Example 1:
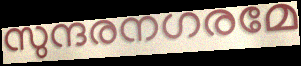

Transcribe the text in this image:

സുന്ദരനഗരമേ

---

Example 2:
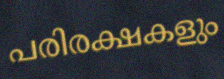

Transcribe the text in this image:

പരിരക്ഷകളും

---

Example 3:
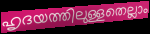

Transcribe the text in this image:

ഹൃദയത്തിലുള്ളതെല്ലാം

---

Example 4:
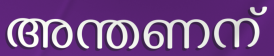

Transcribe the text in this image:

അന്തണന്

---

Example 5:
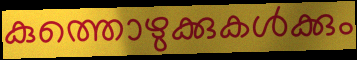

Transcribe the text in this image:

കുത്തൊഴുക്കുകൾക്കും